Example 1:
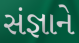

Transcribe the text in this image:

સંજ્ઞાને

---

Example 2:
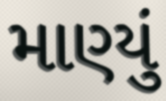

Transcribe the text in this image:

માણ્યું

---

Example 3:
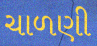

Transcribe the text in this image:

ચાળણી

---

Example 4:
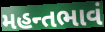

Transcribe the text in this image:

મહન્તભાવં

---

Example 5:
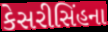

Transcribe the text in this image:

કેસરીસિંહના